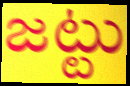
జట్టు